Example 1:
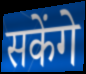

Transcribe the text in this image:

सकेंगे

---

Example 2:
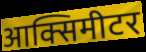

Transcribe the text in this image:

आक्सिमीटर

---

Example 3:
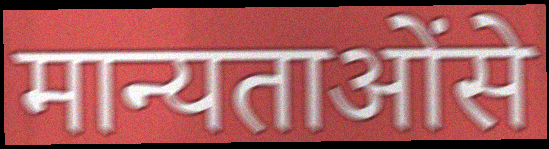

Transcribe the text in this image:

मान्यताओंसे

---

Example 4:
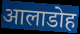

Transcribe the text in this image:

आलाडोह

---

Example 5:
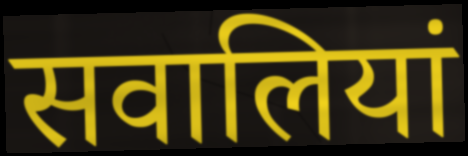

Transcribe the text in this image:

सवालियां